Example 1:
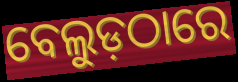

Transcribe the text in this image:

ବେଲୁଡ଼ଠାରେ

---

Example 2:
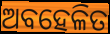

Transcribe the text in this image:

ଅବହେଳିତ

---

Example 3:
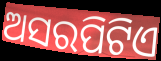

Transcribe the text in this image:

ଅସରପିଟିଏ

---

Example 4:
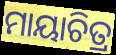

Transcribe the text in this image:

ମାୟାଚିତ୍ର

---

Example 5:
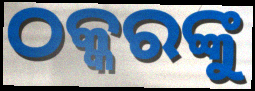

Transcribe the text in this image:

ଠକ୍କରଙ୍କୁ